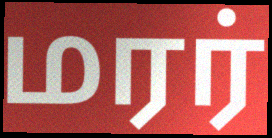
மரர்